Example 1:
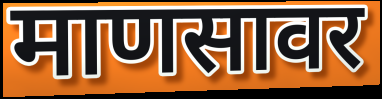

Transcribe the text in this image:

माणसावर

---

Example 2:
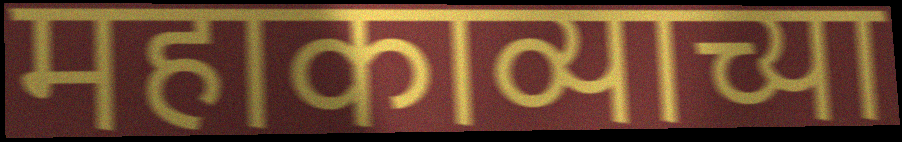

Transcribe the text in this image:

महाकाव्याच्या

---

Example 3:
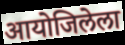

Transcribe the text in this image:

आयोजिलेला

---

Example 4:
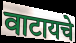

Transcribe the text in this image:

वाटायचे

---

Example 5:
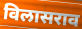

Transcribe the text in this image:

विलासराव